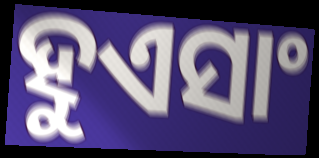
ହୁଏସାଂ